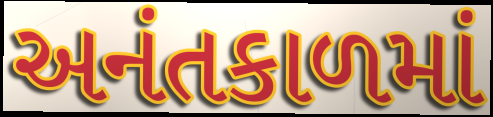
અનંતકાળમાં